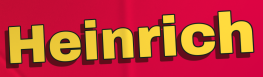
Heinrich